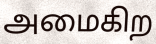
அமைகிற